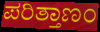
ಪರಿತ್ತಾಣಂ